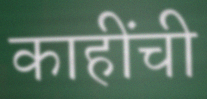
काहींची